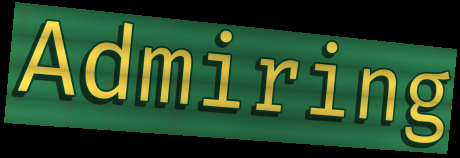
Admiring